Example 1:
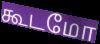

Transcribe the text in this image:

கூடமோ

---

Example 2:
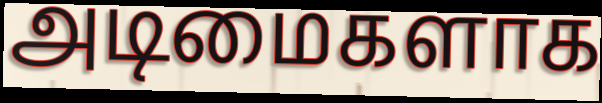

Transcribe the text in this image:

அடிமைகளாக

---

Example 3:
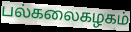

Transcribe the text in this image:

பல்கலைகழகம்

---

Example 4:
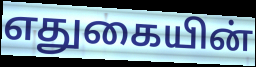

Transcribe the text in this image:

எதுகையின்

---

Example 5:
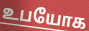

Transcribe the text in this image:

உபயோக